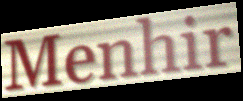
Menhir